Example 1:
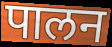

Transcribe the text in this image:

पालन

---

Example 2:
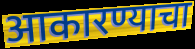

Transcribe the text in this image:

आकारण्याचा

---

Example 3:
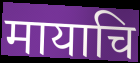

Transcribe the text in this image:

मायाचि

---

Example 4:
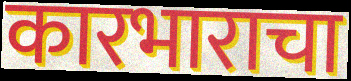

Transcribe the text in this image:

कारभाराचा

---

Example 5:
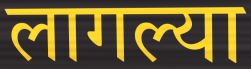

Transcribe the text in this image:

लागल्या